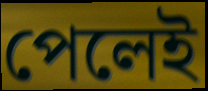
পেলেই